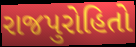
રાજપુરોહિતો